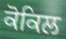
ਕੋਕਿਲ